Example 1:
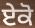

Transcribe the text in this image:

ਏਕੋ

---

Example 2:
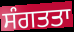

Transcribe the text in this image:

ਸੰਗਤਤਾ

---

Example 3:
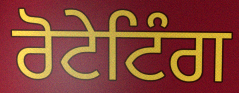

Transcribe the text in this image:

ਰੋਟੇਟਿੰਗ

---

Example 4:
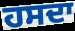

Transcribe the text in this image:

ਹਸਦਾ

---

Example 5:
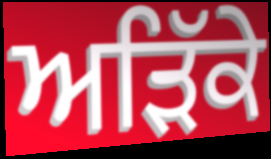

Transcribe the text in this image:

ਅੜਿੱਕੇ